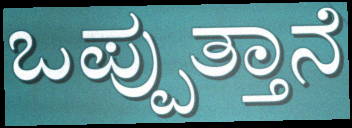
ಒಪ್ಪುತ್ತಾನೆ